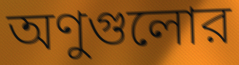
অণুগুলোর